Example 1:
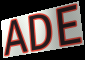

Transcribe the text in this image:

ADE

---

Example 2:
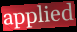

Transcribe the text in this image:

applied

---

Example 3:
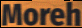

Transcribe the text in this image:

Moreh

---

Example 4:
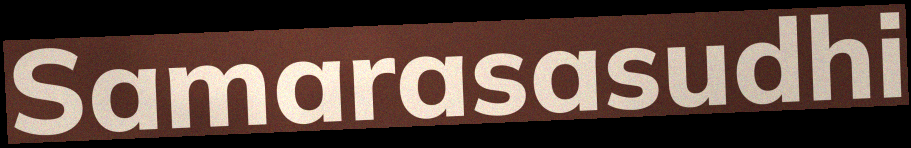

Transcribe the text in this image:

Samarasasudhi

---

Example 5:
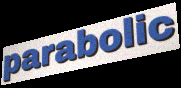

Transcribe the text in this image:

parabolic